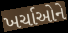
ખર્ચાઓને